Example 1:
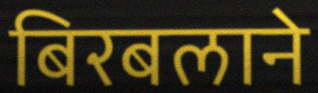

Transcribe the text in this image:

बिरबलाने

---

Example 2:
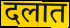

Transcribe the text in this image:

दलात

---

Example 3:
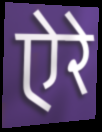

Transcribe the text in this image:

ऐरे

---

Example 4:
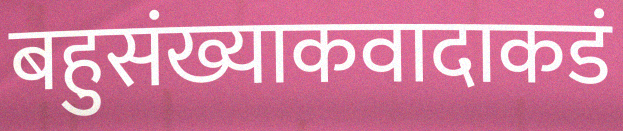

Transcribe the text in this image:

बहुसंख्याकवादाकडं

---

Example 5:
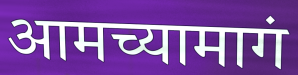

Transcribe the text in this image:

आमच्यामागं